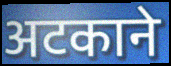
अटकाने